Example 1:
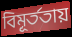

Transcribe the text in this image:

বিমূর্ততায়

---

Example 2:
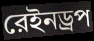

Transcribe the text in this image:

রেইনড্রপ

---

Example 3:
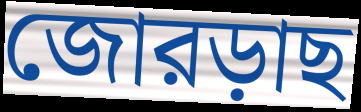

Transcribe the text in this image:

জোরড়াছ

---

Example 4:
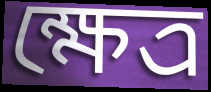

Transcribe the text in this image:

ক্ষেত্র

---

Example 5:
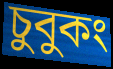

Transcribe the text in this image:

চুবুকং